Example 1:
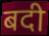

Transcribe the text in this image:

बदी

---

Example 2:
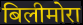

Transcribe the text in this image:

बिलीमोरा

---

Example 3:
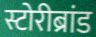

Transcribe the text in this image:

स्टोरीब्रांड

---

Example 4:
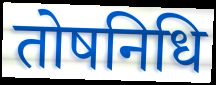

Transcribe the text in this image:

तोषनिधि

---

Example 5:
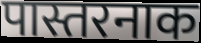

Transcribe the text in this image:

पास्तरनाक